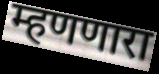
म्हणणारा